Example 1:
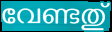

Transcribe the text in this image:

വേണ്ടതു്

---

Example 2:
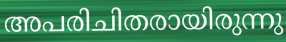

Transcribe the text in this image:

അപരിചിതരായിരുന്നു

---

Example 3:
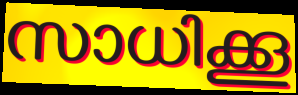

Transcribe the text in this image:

സാധിക്കൂ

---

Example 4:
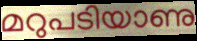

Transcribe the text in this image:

മറുപടിയാണു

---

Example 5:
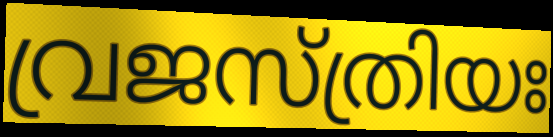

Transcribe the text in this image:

വ്രജസ്ത്രിയഃ